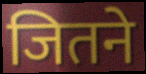
जितने